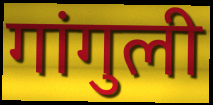
गांगुली